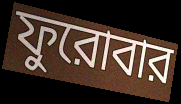
ফুরোবার